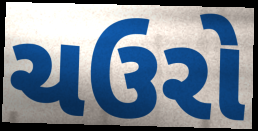
ચઉરો